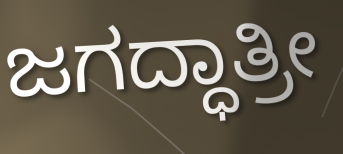
ಜಗದ್ಧಾತ್ರೀ